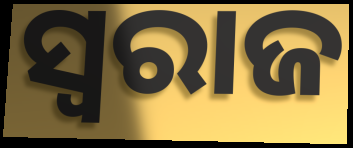
ସ୍ଵରାଜ